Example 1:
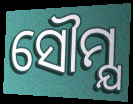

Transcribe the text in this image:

ସୌମ୍ଯ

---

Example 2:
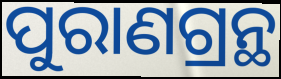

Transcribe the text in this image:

ପୁରାଣଗ୍ରନ୍ଥ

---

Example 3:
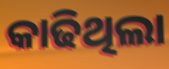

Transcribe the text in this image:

କାଢିଥିଲା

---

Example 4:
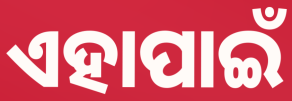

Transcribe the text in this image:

ଏହାପାଇଁ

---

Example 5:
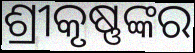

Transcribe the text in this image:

ଶ୍ରୀକୃଷ୍ଣଙ୍କର